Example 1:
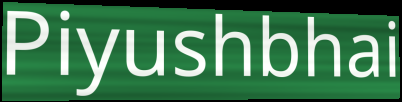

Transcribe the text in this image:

Piyushbhai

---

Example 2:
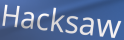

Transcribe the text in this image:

Hacksaw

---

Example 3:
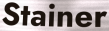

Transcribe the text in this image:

Stainer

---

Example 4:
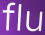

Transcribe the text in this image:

flu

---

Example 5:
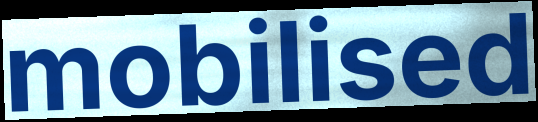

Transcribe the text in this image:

mobilised